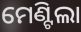
ମେଣ୍ଟିଲା